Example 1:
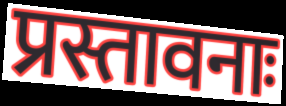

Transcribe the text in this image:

प्रस्तावनाः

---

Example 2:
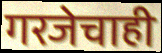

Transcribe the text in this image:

गरजेचाही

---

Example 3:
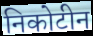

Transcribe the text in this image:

निकोटीन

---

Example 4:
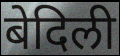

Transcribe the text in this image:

बेदिली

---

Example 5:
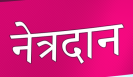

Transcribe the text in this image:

नेत्रदान